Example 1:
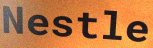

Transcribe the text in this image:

Nestle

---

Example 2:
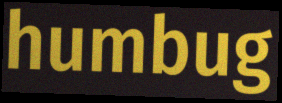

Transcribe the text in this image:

humbug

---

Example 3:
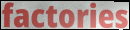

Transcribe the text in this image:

factories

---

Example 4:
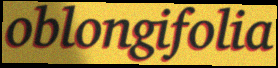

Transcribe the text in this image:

oblongifolia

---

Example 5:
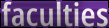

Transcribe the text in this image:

faculties